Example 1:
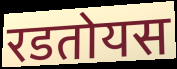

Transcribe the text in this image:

रडतोयस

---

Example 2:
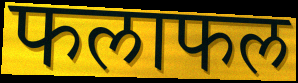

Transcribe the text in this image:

फलाफल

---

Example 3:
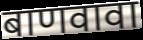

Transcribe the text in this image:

बाणवावा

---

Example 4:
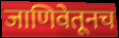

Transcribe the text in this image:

जाणिवेतूनच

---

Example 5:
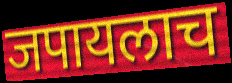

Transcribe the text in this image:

जपायलाच